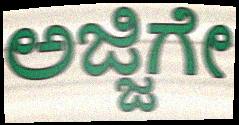
ಅಜ್ಜಿಗೇ